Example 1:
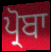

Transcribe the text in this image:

ਪ੍ਰੋਬਾ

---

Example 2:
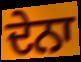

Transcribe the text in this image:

ਦੇਨਾ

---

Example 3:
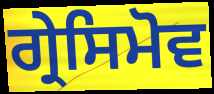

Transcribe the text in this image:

ਗ੍ਰੇਸਿਮੋਵ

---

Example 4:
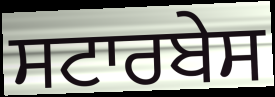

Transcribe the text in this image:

ਸਟਾਰਬੇਸ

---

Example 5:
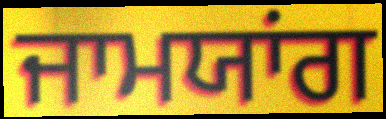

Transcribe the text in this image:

ਜਾਮਯਾਂਗ